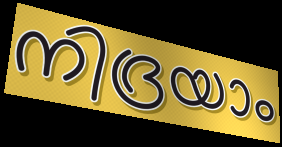
നിദ്രയാം